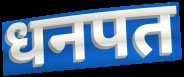
धनपत